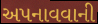
અપનાવવાની